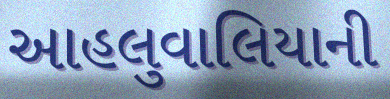
આહલુવાલિયાની